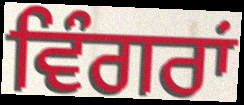
ਵਿੰਗਰਾਂ